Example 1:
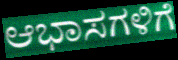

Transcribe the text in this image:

ಆಭಾಸಗಳಿಗೆ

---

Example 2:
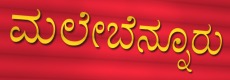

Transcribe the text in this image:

ಮಲೇಬೆನ್ನೂರು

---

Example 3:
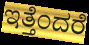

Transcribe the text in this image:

ಇತ್ತೆಂದರೆ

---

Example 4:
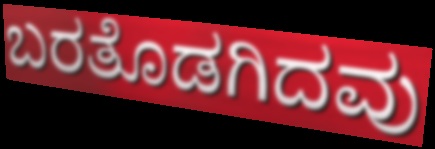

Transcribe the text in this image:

ಬರತೊಡಗಿದವು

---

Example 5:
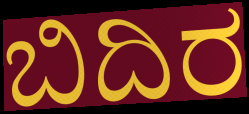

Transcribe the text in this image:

ಬಿದಿರ